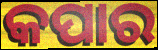
କପାର